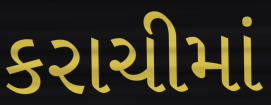
કરાચીમાં